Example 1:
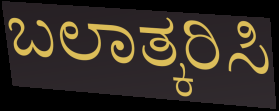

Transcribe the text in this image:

ಬಲಾತ್ಕರಿಸಿ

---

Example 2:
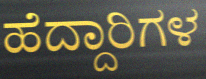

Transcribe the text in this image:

ಹೆದ್ದಾರಿಗಳ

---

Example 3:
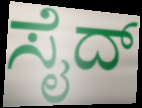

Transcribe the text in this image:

ಸೈದ್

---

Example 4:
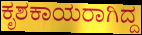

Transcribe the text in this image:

ಕೃಶಕಾಯರಾಗಿದ್ದ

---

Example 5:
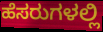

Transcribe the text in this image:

ಹೆಸರುಗಳಲ್ಲಿ